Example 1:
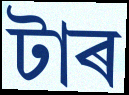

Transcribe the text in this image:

টাৰ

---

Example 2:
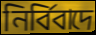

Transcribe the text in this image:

নিৰ্বিবাদে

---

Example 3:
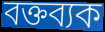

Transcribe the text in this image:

বক্তব্যক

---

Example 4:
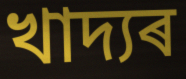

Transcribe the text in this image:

খাদ্যৰ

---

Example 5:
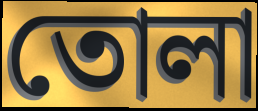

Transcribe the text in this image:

তোলা